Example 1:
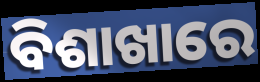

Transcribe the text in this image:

ବିଶାଖାରେ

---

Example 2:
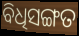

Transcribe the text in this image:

ବିଧିସଙ୍ଗତ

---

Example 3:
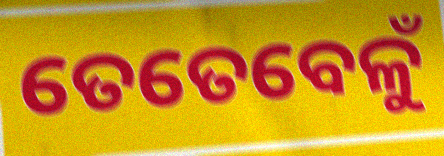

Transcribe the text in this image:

ତେତେବେଳୁଁ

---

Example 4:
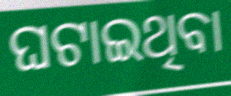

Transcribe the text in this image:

ଘଟାଇଥିବା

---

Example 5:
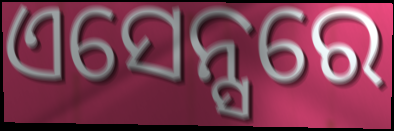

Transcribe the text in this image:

ଏସେନ୍ସରେ